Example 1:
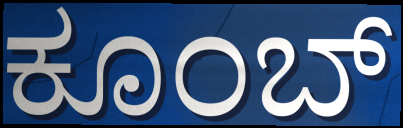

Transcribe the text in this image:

ಕೂಂಬ್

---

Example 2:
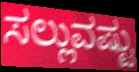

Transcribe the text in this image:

ಸಲ್ಲುವಷ್ಟು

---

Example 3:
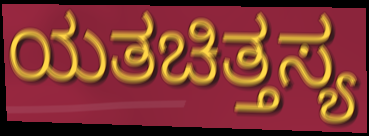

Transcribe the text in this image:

ಯತಚಿತ್ತಸ್ಯ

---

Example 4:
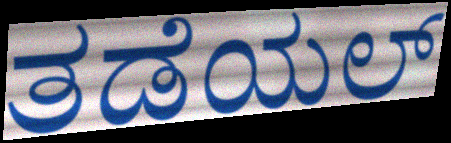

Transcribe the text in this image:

ತಡೆಯಲ್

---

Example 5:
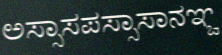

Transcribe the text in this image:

ಅಸ್ಸಾಸಪಸ್ಸಾಸಾನಞ್ಚ